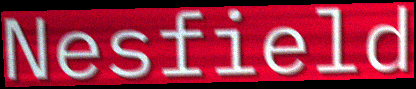
Nesfield